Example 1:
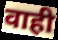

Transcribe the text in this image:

वाही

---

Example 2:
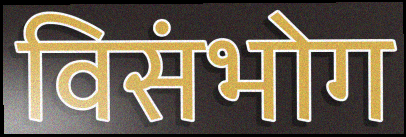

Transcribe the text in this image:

विसंभोग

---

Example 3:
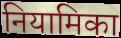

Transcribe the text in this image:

नियामिका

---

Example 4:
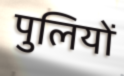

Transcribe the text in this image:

पुलियों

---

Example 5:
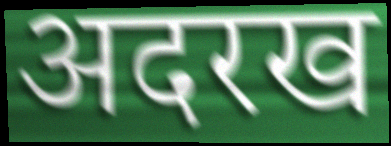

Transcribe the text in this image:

अदरख